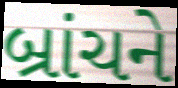
બ્રાંચને